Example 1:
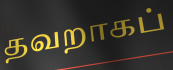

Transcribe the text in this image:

தவறாகப்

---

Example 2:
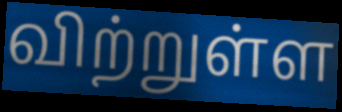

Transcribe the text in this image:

விற்றுள்ள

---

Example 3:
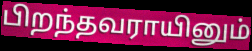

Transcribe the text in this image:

பிறந்தவராயினும்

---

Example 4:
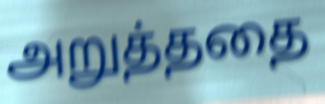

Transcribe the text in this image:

அறுத்ததை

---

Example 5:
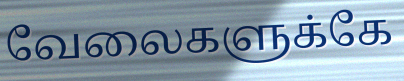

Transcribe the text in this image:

வேலைகளுக்கே